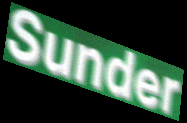
Sunder